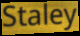
Staley